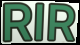
RIR